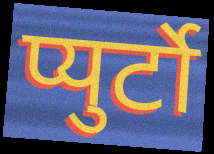
प्युर्टो